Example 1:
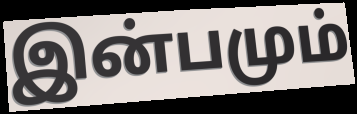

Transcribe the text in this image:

இன்பமும்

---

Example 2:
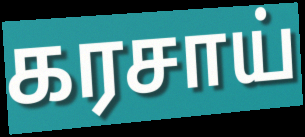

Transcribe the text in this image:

கரசாய்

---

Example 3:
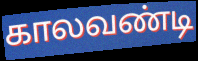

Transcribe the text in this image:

காலவண்டி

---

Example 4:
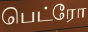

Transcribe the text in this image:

பெட்ரோ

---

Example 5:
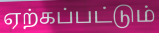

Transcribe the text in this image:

ஏற்கப்பட்டும்